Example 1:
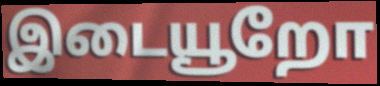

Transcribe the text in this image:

இடையூறோ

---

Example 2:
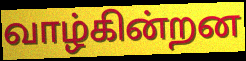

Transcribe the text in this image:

வாழ்கின்றன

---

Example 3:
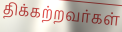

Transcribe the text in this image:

திக்கற்றவர்கள்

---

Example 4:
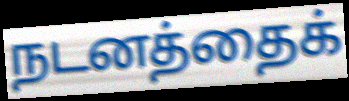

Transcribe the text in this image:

நடனத்தைக்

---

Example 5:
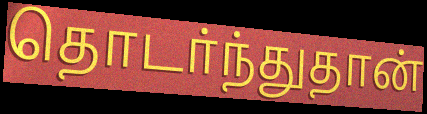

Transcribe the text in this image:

தொடர்ந்துதான்